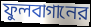
ফুলবাগানের